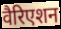
वैरिएशन